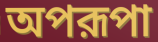
অপরূপা